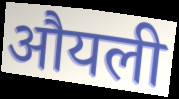
औयली